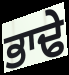
ਭਾਢੇ